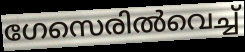
ഗേസെരിൽവെച്ച്